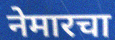
नेमारचा